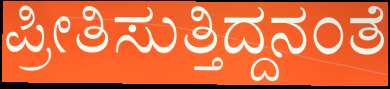
ಪ್ರೀತಿಸುತ್ತಿದ್ದನಂತೆ